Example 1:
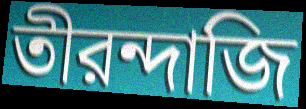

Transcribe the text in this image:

তীরন্দাজি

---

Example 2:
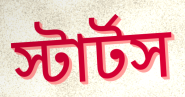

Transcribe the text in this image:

স্টার্টস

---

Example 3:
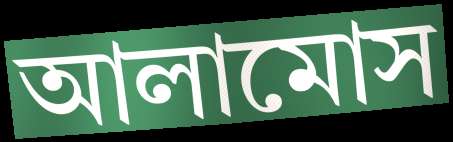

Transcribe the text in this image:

আলামোস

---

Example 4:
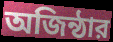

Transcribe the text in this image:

অজিন্ঠার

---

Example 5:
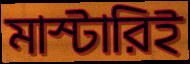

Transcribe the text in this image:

মাস্টারিই